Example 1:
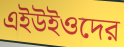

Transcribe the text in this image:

এইউইওদের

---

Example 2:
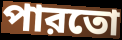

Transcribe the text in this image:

পারতো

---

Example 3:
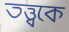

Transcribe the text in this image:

তত্ত্বকে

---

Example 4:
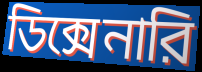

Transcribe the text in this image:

ডিক্সেনারি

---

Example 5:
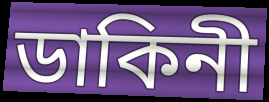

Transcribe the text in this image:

ডাকিনী